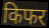
किफर